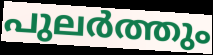
പുലർത്തും